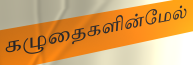
கழுதைகளின்மேல்